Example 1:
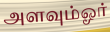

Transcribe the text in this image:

அளவும்ஓர்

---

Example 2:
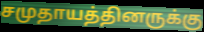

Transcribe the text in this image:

சமுதாயத்தினருக்கு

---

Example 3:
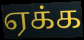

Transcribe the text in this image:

ஏக்க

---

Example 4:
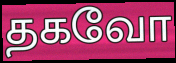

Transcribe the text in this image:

தகவோ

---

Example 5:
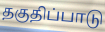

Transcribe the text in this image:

தகுதிப்பாடு